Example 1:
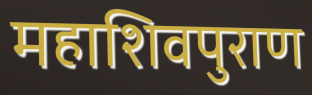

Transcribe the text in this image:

महाशिवपुराण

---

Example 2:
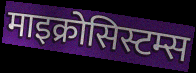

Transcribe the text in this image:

माइक्रोसिस्टम्स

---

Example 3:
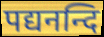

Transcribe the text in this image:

पद्यनन्दि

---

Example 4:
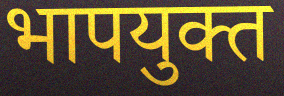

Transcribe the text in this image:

भापयुक्त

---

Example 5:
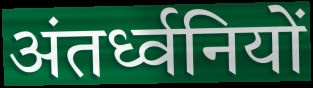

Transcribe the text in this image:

अंतर्ध्वनियों